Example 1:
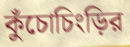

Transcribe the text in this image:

কুঁচোচিংড়ির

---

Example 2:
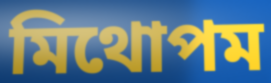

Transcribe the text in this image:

মিথোপম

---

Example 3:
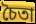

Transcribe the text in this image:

চৈতা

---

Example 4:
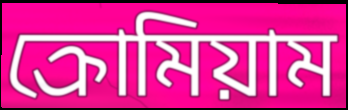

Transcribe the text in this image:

ক্রোমিয়াম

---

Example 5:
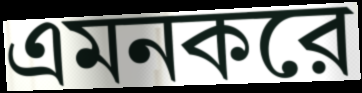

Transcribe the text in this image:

এমনকরে